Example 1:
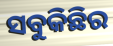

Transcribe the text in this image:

ସବୁକିଛିର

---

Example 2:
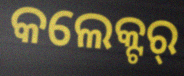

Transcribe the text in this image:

କଲେକ୍ଟର୍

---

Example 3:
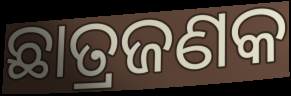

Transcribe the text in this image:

ଛାତ୍ରଜଣକ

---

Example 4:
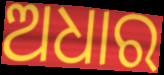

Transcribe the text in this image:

ଅଧାର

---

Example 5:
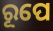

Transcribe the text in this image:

ରୂପେ